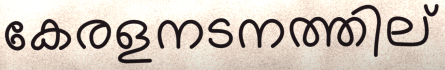
കേരളനടനത്തില്